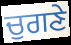
ਚੁਗਣੇ